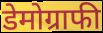
डेमोग्राफी